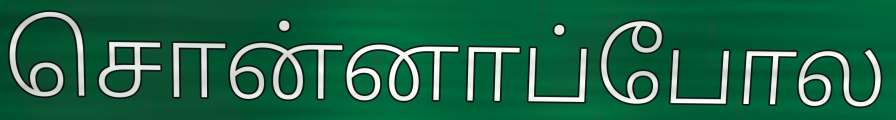
சொன்னாப்போல